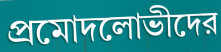
প্রমোদলোভীদের